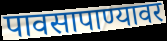
पावसापाण्यावर